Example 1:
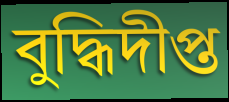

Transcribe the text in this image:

বুদ্ধিদীপ্ত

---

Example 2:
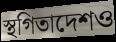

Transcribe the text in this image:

স্থগিতাদেশও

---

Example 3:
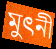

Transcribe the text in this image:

মুৎনী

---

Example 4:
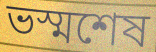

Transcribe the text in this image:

ভস্মশেষ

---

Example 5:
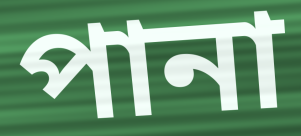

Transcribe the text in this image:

পানা